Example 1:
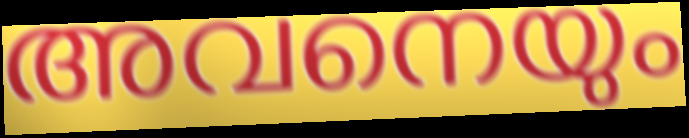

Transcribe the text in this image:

അവനെയും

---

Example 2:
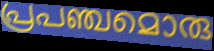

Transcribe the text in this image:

പ്രപഞ്ചമൊരു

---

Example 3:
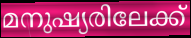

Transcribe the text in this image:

മനുഷ്യരിലേക്ക്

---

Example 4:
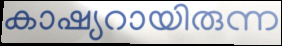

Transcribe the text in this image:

കാഷ്യറായിരുന്ന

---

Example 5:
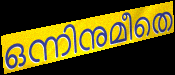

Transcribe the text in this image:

ഒന്നിനുമീതെ